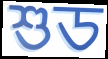
শুড